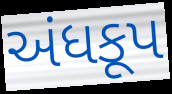
અંધકૂપ